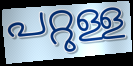
പറ്റുള്ള